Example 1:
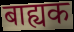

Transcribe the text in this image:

बाह्यक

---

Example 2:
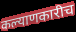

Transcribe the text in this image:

कल्याणकारीच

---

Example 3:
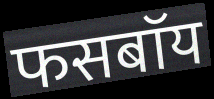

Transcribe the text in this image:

फसबॉय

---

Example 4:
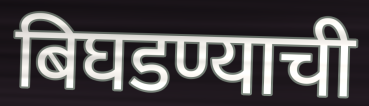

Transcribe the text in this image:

बिघडण्याची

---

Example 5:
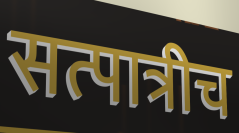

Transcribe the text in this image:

सत्पात्रीच